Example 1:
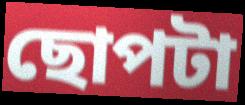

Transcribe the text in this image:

ছোপটা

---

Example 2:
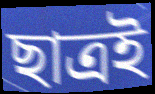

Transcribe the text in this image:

ছাত্রই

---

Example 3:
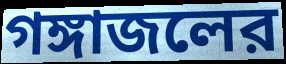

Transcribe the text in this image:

গঙ্গাজলের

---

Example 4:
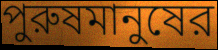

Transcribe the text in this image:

পুরুষমানুষের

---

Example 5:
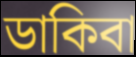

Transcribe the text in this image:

ডাকিবা